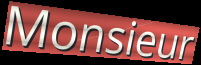
Monsieur